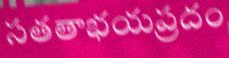
సతతాభయప్రదం